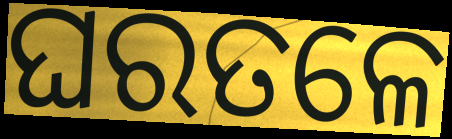
ଘରତଳେ